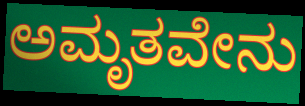
ಅಮೃತವೇನು